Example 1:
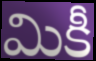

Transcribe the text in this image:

మికీ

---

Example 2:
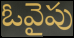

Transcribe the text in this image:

ఓవైపు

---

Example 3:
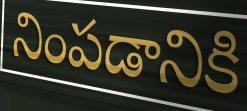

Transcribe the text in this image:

నింపడానికి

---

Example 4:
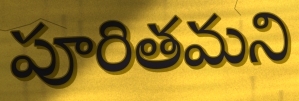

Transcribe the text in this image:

పూరితమని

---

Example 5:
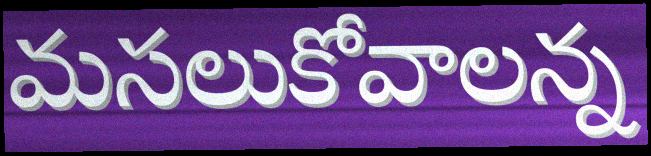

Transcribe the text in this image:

మసలుకోవాలన్న